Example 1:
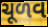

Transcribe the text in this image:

ચૂળવ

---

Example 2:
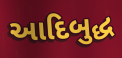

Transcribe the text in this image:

આદિબુદ્ધ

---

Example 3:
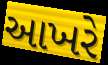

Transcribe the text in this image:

આખરે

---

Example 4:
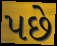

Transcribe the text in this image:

પછે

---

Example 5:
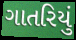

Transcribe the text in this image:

ગાતરિયું